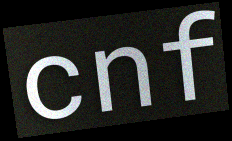
cnf